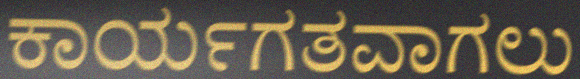
ಕಾರ್ಯಗತವಾಗಲು